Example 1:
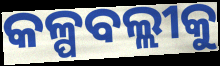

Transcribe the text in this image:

କଳ୍ପବଲ୍ଲୀକୁ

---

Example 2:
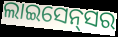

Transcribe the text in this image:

ଲାଇସେନ୍‌ସର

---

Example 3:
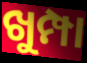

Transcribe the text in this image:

ଖୁମ୍ପା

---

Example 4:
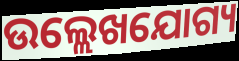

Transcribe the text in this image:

ଉଲ୍ଲେଖଯୋଗ୍ୟ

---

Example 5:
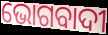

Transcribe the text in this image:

ଭୋଗବାଦୀ